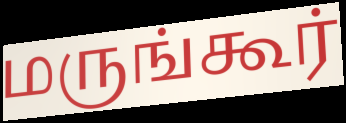
மருங்கூர்